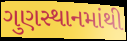
ગુણસ્થાનમાંથી